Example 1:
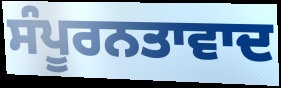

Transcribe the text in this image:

ਸੰਪੂਰਨਤਾਵਾਦ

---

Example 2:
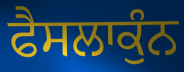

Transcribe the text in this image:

ਫੈਸਲਾਕੁੰਨ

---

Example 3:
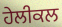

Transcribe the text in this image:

ਹੇਲੀਕਲ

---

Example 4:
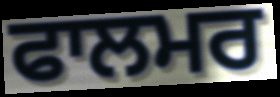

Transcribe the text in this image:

ਫਾਲਮਰ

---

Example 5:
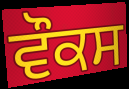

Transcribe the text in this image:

ਵੌਕਸ